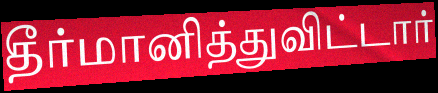
தீர்மானித்துவிட்டார்